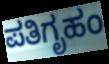
ಪತಿಗೃಹಂ